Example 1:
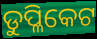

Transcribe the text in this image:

ଡୁପ୍ଳିକେଟ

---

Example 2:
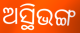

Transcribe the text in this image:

ଅସ୍ଥିଭଙ୍ଗ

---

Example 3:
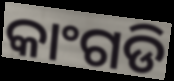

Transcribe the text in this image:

କାଂଗଡି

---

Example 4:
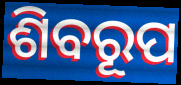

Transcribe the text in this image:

ଶିବରୂପ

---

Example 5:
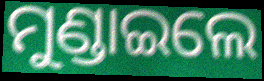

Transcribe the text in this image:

ମୁଣ୍ଡାଇଲେ